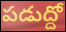
పడుద్దో